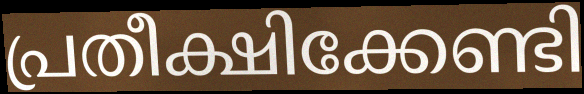
പ്രതീക്ഷിക്കേണ്ടി